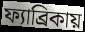
ফ্যাব্রিকায়